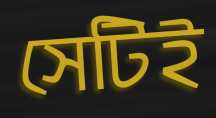
সেটিই